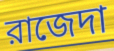
রাজেদা